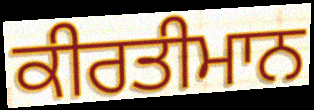
ਕੀਰਤੀਮਾਨ